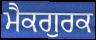
ਮੈਕਗੁਰਕ